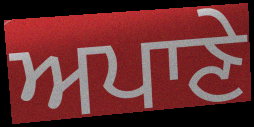
ਅਪਾਣੇ